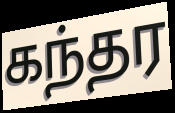
கந்தர